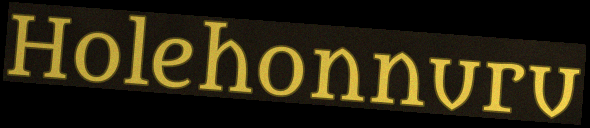
Holehonnuru